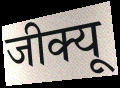
जीक्यू